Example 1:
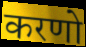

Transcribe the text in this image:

करणो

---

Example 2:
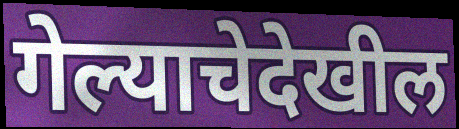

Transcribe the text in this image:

गेल्याचेदेखील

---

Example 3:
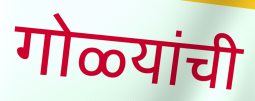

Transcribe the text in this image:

गोळ्यांची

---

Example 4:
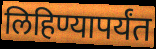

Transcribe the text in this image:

लिहिण्यापर्यंत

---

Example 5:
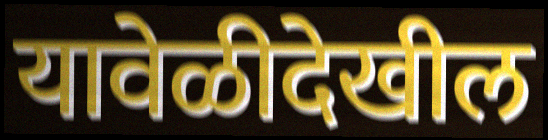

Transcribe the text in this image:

यावेळीदेखील